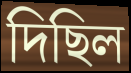
দিছিল